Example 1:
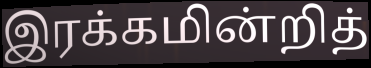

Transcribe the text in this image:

இரக்கமின்றித்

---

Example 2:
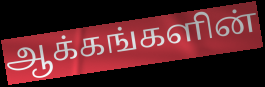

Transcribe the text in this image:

ஆக்கங்களின்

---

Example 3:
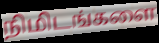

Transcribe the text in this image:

நிமிடங்களை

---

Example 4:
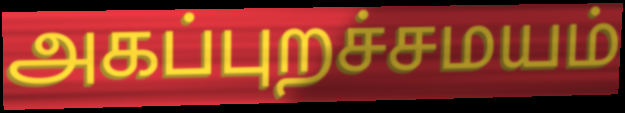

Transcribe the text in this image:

அகப்புறச்சமயம்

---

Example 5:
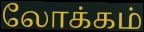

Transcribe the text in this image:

லோக்கம்